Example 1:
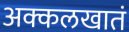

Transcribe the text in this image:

अक्कलखातं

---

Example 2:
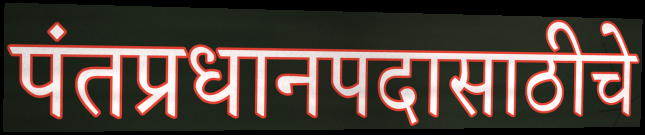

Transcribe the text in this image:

पंतप्रधानपदासाठीचे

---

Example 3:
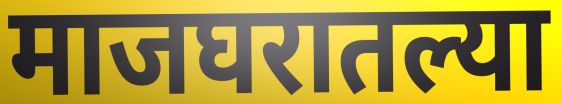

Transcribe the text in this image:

माजघरातल्या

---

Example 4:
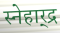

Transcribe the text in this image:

स्नेहार्द्र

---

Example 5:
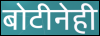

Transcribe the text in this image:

बोटीनेही